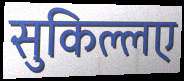
सुकिल्लए